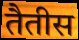
तैतीस